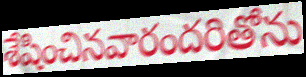
శేషించినవారందరితోను